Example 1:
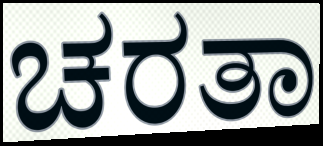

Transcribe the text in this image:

ಚರತಾ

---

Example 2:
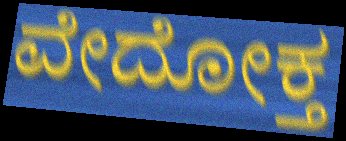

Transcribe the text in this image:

ವೇದೋಕ್ತ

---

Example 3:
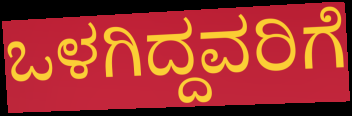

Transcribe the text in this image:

ಒಳಗಿದ್ದವರಿಗೆ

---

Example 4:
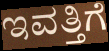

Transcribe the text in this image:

ಇವತ್ತಿಗೆ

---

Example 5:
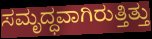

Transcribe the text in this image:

ಸಮೃದ್ಧವಾಗಿರುತ್ತಿತ್ತು